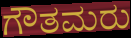
ಗೌತಮರು